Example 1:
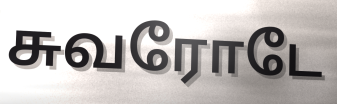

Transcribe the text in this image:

சுவரோடே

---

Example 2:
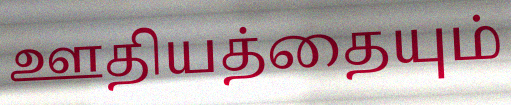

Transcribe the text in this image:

ஊதியத்தையும்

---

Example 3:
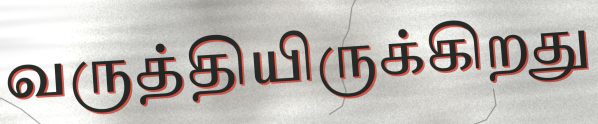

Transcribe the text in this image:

வருத்தியிருக்கிறது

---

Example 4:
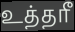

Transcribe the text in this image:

உத்தரீ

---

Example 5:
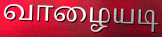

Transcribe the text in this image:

வாழையடி